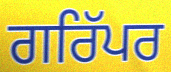
ਗਰਿੱਪਰ